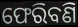
ଫେରିବଣି